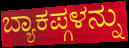
ಬ್ಯಾಕಪ್ಗಳನ್ನು